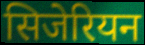
सिजेरियन